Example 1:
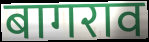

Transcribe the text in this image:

बागराव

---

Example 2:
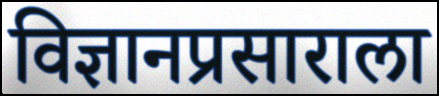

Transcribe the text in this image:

विज्ञानप्रसाराला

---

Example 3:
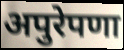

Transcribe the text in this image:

अपुरेपणा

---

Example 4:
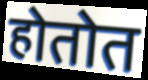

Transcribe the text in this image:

होतोत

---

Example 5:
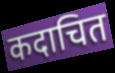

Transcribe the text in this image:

कदाचित